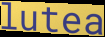
lutea